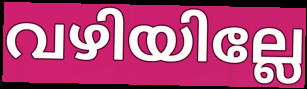
വഴിയില്ലേ